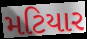
મટિયાર